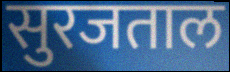
सुरजताल